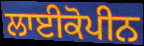
ਲਾਈਕੋਪੀਨ